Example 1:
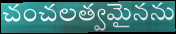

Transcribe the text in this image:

చంచలత్వమైనను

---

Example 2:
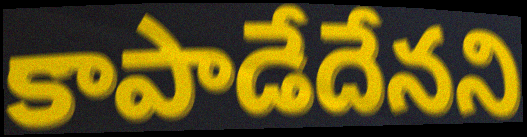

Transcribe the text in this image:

కాపాడేదేనని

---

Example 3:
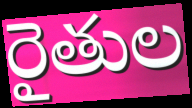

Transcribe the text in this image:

రైతుల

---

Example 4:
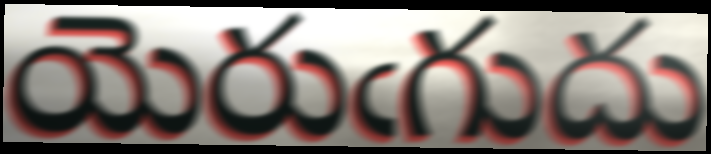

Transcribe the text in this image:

యెరుఁగుదు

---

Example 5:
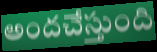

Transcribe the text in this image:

అందచేస్తుంది